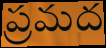
ప్రమద